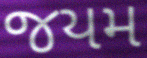
જયમ